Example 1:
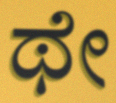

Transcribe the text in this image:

ಥೇ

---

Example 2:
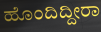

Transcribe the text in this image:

ಹೊಂದಿದ್ದೀರಾ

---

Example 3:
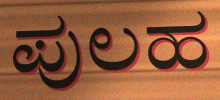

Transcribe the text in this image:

ಪುಲಹ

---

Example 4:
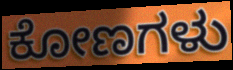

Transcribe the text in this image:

ಕೋಣಗಳು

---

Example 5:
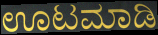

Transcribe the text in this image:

ಊಟಮಾಡಿ